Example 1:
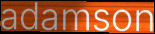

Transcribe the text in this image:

adamson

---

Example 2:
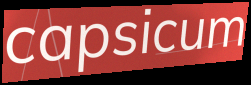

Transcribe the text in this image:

capsicum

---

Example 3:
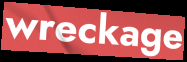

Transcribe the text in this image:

wreckage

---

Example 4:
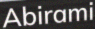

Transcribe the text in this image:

Abirami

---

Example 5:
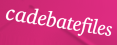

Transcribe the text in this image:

cadebatefiles